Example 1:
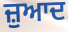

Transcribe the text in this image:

ਜ਼ੁਆਦ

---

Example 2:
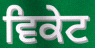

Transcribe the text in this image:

ਵਿਕੇਟ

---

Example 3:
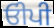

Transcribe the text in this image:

ਓੀਪੀ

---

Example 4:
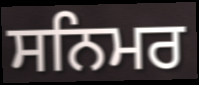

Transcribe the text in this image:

ਸਨਿਮਰ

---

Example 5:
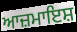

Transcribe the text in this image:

ਆਜ਼ਮਾਇਸ਼